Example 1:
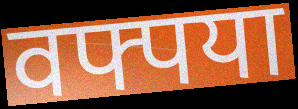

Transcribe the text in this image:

वफ्पया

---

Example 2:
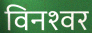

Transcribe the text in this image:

विनश्वर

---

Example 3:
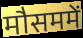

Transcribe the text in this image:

मौसममें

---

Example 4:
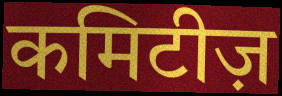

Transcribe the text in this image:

कमिटीज़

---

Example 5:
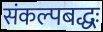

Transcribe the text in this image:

संकल्पबद्धः